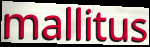
mallitus